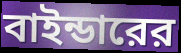
বাইন্ডারের